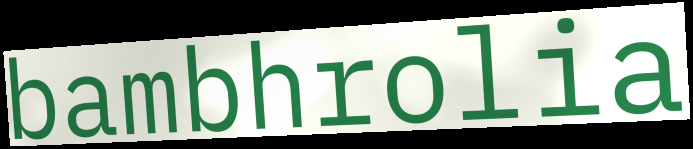
bambhrolia